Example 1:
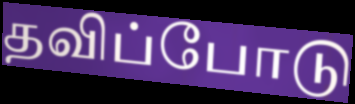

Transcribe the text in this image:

தவிப்போடு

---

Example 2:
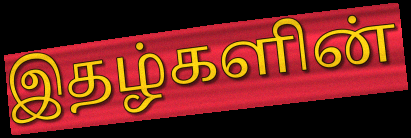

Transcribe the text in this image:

இதழ்களின்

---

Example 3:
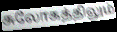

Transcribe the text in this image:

சுலோகத்திலும்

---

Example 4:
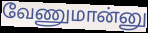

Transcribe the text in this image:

வேணுமான்னு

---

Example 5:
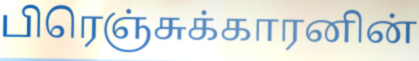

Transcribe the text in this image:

பிரெஞ்சுக்காரனின்